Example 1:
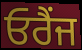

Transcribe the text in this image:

ਓਰੈਂਜ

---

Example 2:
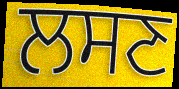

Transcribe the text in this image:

ਲਸਣ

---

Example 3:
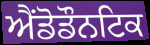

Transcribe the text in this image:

ਐਂਡੋਡੌਨਟਿਕ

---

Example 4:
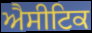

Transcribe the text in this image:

ਐਸੀਟਿਕ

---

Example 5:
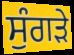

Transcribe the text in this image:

ਸੁੰਗੜੇ